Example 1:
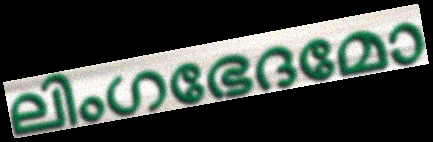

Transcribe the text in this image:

ലിംഗഭേദമോ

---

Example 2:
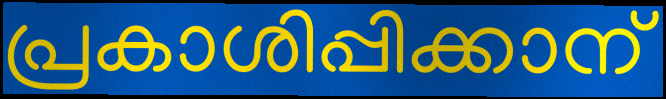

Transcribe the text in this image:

പ്രകാശിപ്പിക്കാന്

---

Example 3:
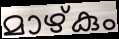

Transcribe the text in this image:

മാഴ്കും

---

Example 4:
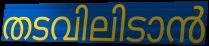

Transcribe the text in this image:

തടവിലിടാൻ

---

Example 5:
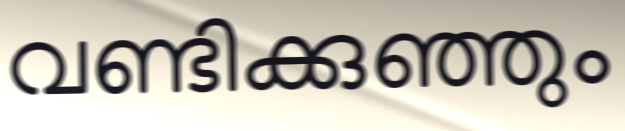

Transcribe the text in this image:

വണ്ടിക്കുഞ്ഞും